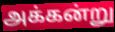
அக்கன்று